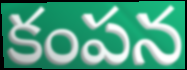
కంపన